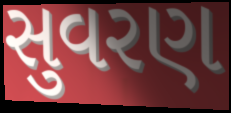
સુવરણ